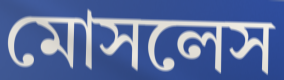
মোসলেস